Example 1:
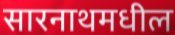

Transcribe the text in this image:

सारनाथमधील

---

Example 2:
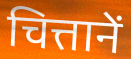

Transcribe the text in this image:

चित्तानें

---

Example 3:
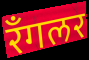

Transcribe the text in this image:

रॅंगलर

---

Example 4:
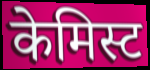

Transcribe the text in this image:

केमिस्ट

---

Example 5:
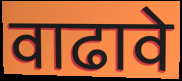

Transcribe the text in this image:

वाढावे